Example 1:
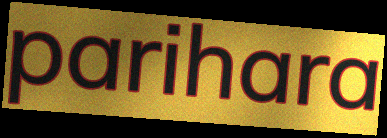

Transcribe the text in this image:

parihara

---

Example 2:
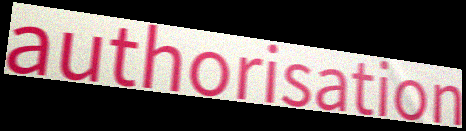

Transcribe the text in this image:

authorisation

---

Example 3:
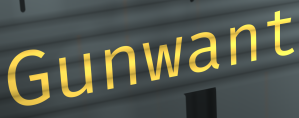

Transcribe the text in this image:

Gunwant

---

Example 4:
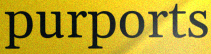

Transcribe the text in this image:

purports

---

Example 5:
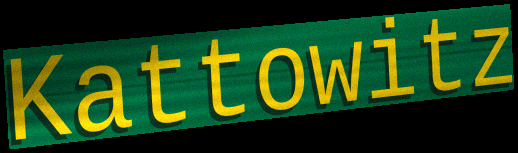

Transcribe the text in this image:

Kattowitz